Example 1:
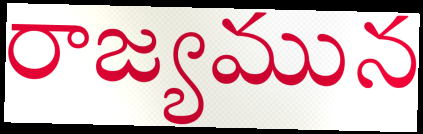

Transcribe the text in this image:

రాజ్యమున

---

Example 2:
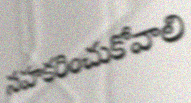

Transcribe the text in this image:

సహకరించుకోవాలి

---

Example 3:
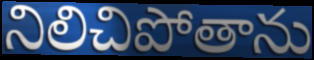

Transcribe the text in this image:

నిలిచిపోతాను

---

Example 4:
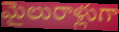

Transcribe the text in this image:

మైలురాళ్లుగా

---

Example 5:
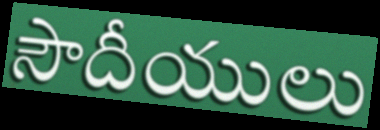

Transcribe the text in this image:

సౌదీయులు